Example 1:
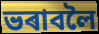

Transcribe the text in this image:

ভৰাবলৈ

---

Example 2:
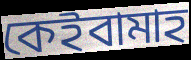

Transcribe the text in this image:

কেইবামাহ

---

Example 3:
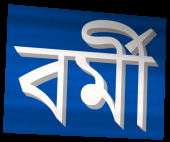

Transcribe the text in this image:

বৰ্মী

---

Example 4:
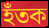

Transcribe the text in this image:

হঁতক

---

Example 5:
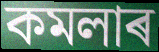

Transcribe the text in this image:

কমলাৰ